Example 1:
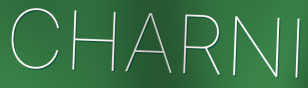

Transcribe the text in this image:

CHARNI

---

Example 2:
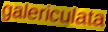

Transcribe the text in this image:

galericulata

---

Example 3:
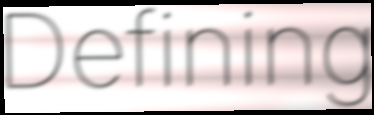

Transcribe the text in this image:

Defining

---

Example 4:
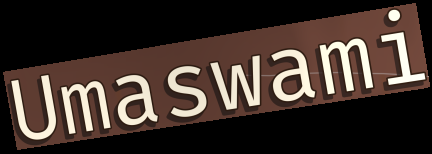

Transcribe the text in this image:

Umaswami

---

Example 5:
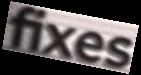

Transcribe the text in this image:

fixes